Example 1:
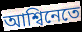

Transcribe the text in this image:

আশ্বিনেতে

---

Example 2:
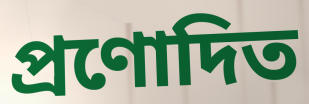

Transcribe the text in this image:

প্ৰণোদিত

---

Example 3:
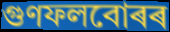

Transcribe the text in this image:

গুণফলবোৰৰ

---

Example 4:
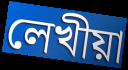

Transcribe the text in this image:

লেখীয়া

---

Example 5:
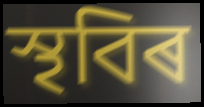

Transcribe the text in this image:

স্থবিৰ